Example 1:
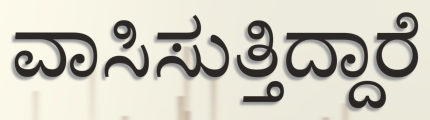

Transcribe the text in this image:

ವಾಸಿಸುತ್ತಿದ್ದಾರೆ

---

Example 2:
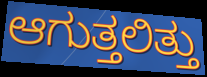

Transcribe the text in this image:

ಆಗುತ್ತಲಿತ್ತು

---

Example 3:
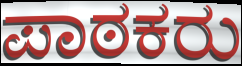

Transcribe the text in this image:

ಪಾಠಕರು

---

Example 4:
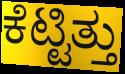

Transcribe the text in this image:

ಕೆಟ್ಟಿತ್ತು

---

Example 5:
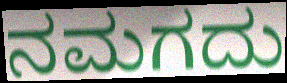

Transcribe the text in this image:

ನಮಗದು